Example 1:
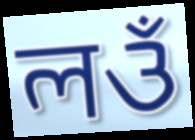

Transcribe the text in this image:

লওঁ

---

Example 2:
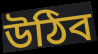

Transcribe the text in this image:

উঠিব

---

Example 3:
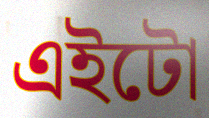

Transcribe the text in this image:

এইটো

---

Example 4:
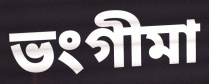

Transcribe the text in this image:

ভংগীমা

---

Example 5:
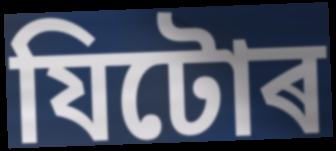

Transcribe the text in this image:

যিটোৰ